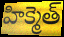
హిక్మెత్